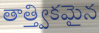
తాత్త్వికమైన